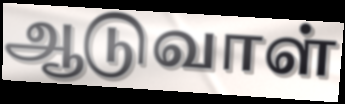
ஆடுவாள்